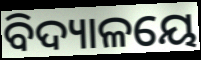
ବିଦ୍ୟାଳୟେ